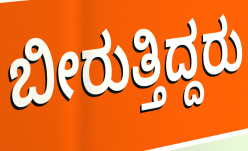
ಬೀರುತ್ತಿದ್ದರು